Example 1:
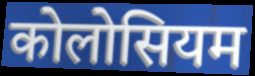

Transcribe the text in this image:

कोलोसियम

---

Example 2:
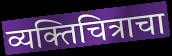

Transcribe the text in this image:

व्यक्तिचित्राचा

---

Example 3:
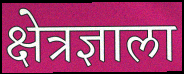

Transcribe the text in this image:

क्षेत्रज्ञाला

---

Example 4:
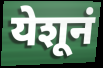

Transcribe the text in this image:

येशूनं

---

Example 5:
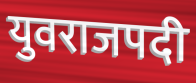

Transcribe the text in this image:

युवराजपदी